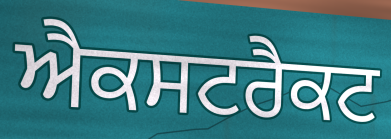
ਐਕਸਟਰੈਕਟ